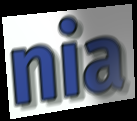
nia